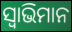
ସ୍ୱାଭିମାନ